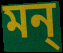
মন্